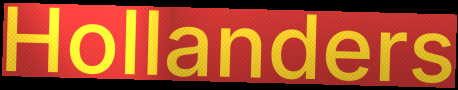
Hollanders